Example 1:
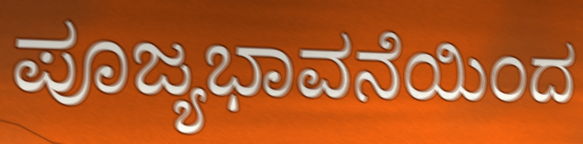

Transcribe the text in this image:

ಪೂಜ್ಯಭಾವನೆಯಿಂದ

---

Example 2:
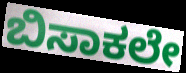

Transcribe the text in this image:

ಬಿಸಾಕಲೇ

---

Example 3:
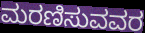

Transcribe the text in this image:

ಮರಣಿಸುವವರ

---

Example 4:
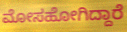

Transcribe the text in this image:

ಮೋಸಹೋಗಿದ್ದಾರೆ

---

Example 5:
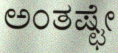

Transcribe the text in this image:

ಅಂತಷ್ಟೇ